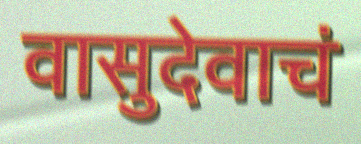
वासुदेवाचं